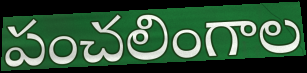
పంచలింగాల